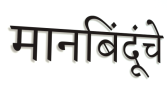
मानबिंदूंचे